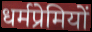
धर्मप्रेमियों